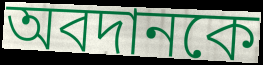
অবদানকে